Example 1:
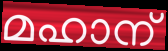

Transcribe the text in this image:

മഹാന്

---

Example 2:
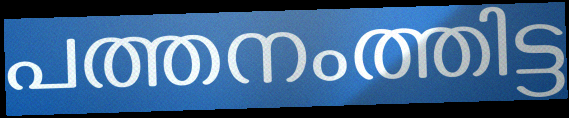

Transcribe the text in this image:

പത്തനംത്തിട്ട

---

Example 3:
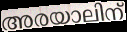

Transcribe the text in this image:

അരയാലിന്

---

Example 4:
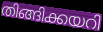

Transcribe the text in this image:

തിങ്ങിക്കയറി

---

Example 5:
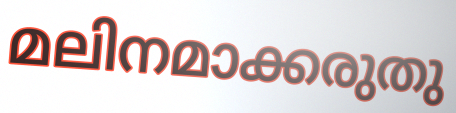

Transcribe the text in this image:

മലിനമാക്കരുതു